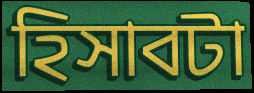
হিসাবটা